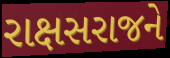
રાક્ષસરાજને